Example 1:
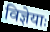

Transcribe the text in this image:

विज्ञेयाः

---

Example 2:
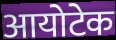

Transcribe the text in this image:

आयोटेक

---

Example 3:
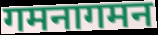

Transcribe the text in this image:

गमनागमन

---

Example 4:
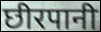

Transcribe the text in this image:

छीरपानी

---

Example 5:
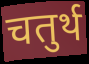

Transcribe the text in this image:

चतुर्थ